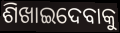
ଶିଖାଇଦେବାକୁ